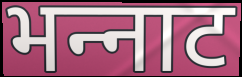
भन्नाट